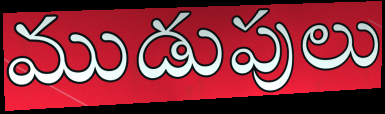
ముడుపులు